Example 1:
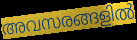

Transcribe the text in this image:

അവസരങ്ങളിൽ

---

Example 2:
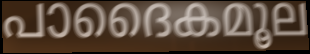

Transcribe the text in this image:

പാദൈകമൂല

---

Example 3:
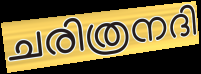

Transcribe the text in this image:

ചരിത്രനദി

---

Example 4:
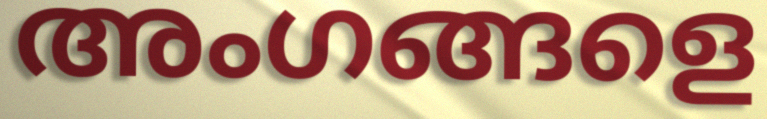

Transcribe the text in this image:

അംഗങ്ങളെ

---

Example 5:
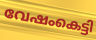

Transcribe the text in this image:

വേഷംകെട്ടി